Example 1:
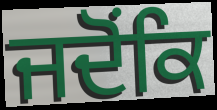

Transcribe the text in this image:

ਜਦੋਂਕਿ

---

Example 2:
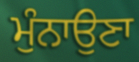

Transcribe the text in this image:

ਮੁੰਨਾਉਣਾ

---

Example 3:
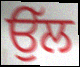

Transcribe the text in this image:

ਉੱਲ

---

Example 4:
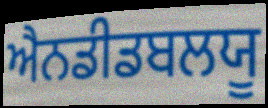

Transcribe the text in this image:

ਐਨਡੀਡਬਲਯੂ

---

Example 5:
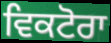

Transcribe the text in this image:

ਵਿਕਟੋਰਾ